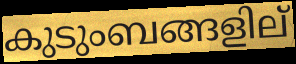
കുടുംബങ്ങളില്